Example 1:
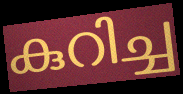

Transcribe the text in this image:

കുറിച്ച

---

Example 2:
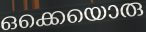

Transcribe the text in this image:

ഒക്കെയൊരു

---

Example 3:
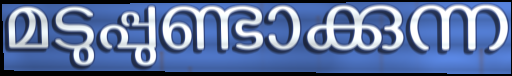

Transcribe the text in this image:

മടുപ്പുണ്ടാക്കുന്ന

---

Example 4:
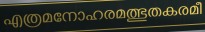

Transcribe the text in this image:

എത്രമനോഹരമത്ഭുതകരമീ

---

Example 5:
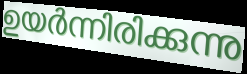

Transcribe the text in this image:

ഉയർന്നിരിക്കുന്നു